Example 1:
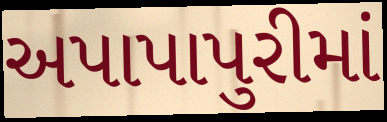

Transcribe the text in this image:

અપાપાપુરીમાં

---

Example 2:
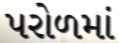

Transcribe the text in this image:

પરોળમાં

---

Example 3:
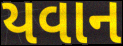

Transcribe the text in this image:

યવાન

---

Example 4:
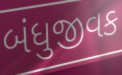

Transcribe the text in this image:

બંધુજીવક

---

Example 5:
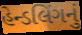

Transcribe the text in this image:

હેન્ડલિંગનું